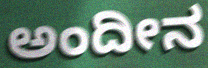
ಅಂದೀನ